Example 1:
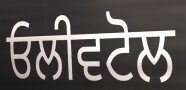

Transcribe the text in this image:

ਓਲੀਵਟੋਲ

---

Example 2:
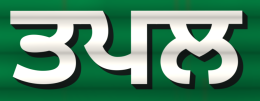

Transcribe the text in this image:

ਤਪਲ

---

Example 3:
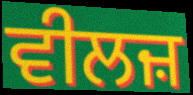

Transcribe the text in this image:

ਵੀਲਜ਼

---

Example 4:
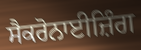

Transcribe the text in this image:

ਸੈਕਰੋਨਾਈਜ਼ਿੰਗ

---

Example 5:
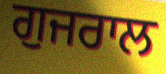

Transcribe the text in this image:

ਗੁਜਰਾਲ